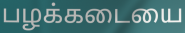
பழக்கடையை